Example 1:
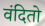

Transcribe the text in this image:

वंदितो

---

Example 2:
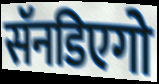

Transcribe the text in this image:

सॅनडिएगो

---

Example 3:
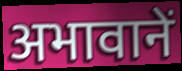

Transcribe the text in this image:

अभावानें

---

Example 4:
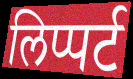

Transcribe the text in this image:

लिप्पर्ट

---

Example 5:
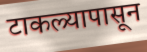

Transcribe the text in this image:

टाकल्यापासून